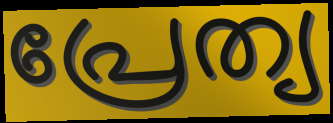
പ്രേത്യ